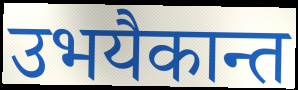
उभयैकान्त